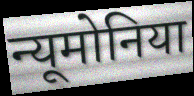
न्यूमोनिया